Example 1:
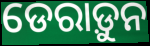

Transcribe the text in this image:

ଡେରାଡ଼ୁନ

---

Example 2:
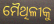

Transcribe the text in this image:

ମୈଥିଳୀକୁ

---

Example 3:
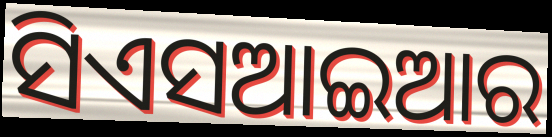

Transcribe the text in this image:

ସିଏସଆଇଆର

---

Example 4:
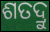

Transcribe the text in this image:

ଶତଦ୍ରୁ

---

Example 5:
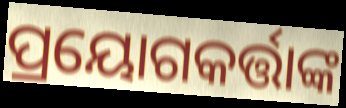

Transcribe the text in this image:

ପ୍ରୟୋଗକର୍ତ୍ତାଙ୍କ